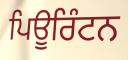
ਪਿਊਰਿੰਟਨ